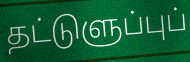
தட்டுளுப்புப்